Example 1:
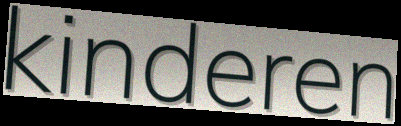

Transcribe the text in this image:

kinderen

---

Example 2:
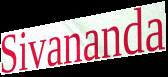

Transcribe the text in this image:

Sivananda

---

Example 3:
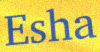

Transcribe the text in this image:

Esha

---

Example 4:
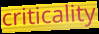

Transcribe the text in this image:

criticality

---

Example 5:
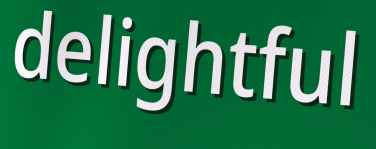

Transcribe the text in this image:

delightful